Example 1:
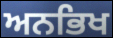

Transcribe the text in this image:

ਅਨਭਿਖ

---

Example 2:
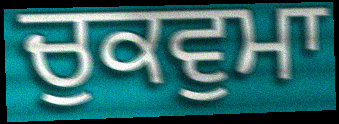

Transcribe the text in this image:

ਚੁਕਵੁਮਾ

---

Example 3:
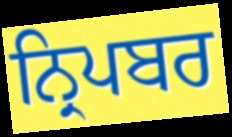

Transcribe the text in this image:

ਨ੍ਰਿਪਬਰ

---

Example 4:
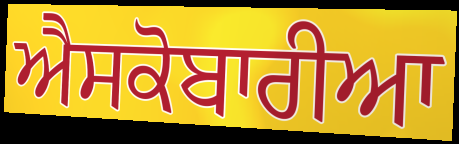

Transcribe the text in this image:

ਐਸਕੋਬਾਰੀਆ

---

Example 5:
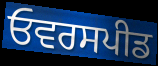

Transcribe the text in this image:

ਓਵਰਸਪੀਡ